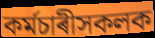
কৰ্মচাৰীসকলক